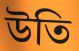
উতি